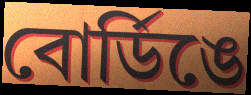
বোর্ডিঙে